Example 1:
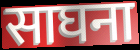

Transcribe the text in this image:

साघना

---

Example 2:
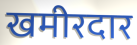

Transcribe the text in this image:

खमीरदार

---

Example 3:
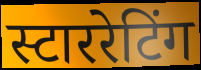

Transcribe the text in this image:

स्टाररेटिंग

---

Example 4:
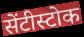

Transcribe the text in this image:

सेंटीस्टोक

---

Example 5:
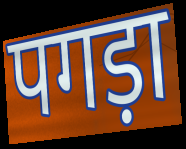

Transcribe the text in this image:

पगड़ा